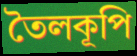
তৈলকূপি